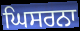
ਘਿਸਰਨਾ